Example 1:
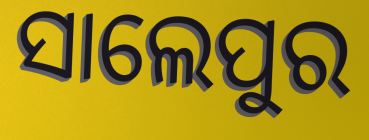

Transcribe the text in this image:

ସାଲେପୁର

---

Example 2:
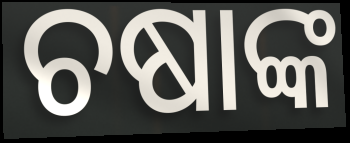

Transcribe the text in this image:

ଚଷାଙ୍କ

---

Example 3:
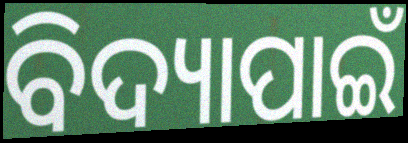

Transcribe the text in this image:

ବିଦ୍ୟାପାଇଁ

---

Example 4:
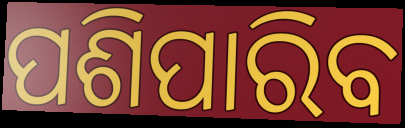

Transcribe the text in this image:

ପଶିପାରିବ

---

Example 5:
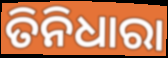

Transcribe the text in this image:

ତିନିଧାରା